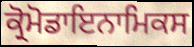
ਕ੍ਰੋਮੋਡਾਇਨਾਮਿਕਸ